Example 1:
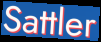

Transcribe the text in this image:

Sattler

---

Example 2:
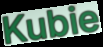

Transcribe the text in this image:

Kubie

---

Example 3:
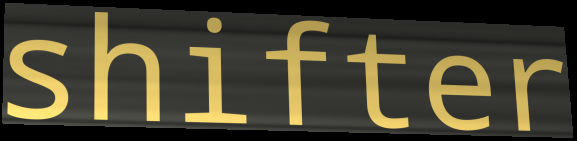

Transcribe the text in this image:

shifter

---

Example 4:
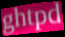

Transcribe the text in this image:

ghtpd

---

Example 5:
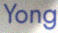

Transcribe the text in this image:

Yong